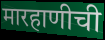
मारहाणीची